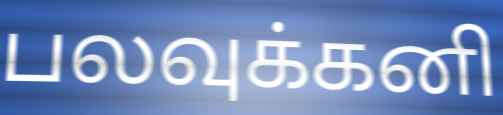
பலவுக்கனி